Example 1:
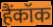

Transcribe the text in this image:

हैंकॉक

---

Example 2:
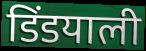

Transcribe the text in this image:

डिंडयाली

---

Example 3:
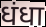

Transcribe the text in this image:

धंधा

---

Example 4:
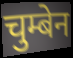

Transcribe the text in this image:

चुम्बेन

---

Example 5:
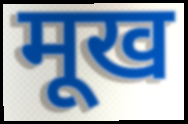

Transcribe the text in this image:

मूख